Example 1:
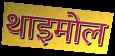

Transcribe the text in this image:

थाइमोल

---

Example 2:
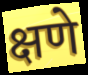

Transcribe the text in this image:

क्षणे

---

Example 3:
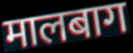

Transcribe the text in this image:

मालबाग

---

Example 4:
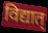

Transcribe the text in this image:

विद्यात्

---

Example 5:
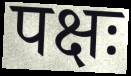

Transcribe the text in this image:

पक्षः